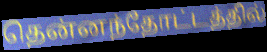
தென்னந்தோட்டத்தில்